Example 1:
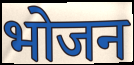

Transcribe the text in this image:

भोजन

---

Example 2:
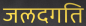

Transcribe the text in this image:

जलदगति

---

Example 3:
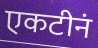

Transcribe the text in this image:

एकटीनं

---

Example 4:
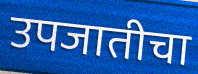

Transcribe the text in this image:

उपजातीचा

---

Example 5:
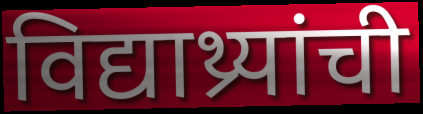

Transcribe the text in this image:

विद्याथ्र्यांची